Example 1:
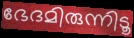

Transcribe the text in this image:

ഭേദമിരുന്നിടൂ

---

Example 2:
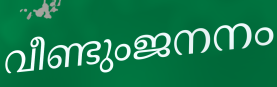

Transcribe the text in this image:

വീണ്ടുംജനനം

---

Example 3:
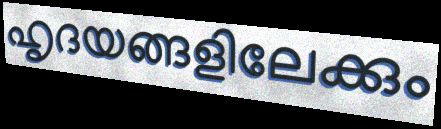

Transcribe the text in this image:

ഹൃദയങ്ങളിലേക്കും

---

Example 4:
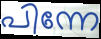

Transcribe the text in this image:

പിന്നേ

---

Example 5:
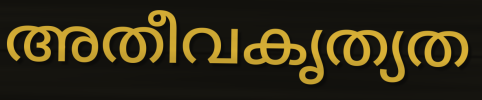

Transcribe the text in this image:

അതീവകൃത്യത